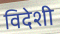
विदेशी